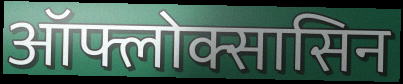
ऑफ्लोक्सासिन